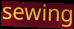
sewing